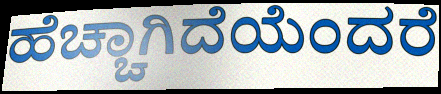
ಹೆಚ್ಚಾಗಿದೆಯೆಂದರೆ